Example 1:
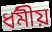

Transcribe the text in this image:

ৰ্ধমীয়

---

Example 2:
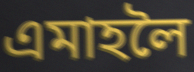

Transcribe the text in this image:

এমাহলৈ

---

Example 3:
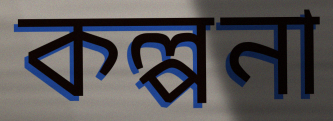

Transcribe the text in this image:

কল্পনা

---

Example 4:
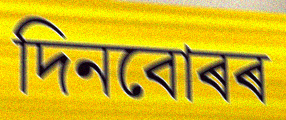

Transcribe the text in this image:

দিনবোৰৰ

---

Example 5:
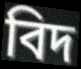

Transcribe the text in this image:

বিদ